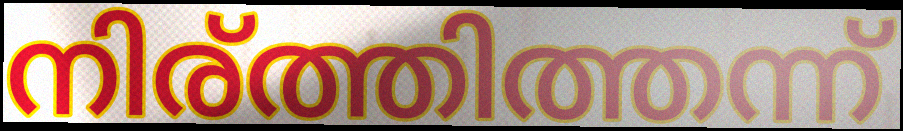
നിര്ത്തിത്തന്ന്